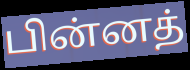
பின்னத்